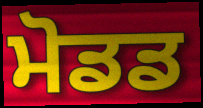
ਮੋਡਡ